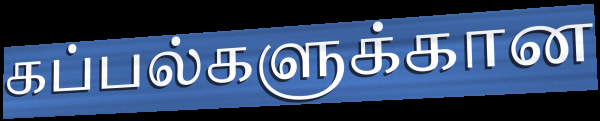
கப்பல்களுக்கான